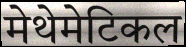
मेथेमेटिकल